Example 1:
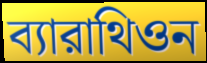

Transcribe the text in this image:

ব্যারাথিওন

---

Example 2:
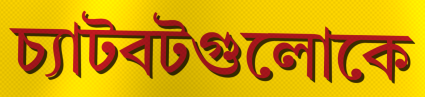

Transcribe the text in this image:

চ্যাটবটগুলোকে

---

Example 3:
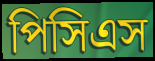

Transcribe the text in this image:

পিসিএস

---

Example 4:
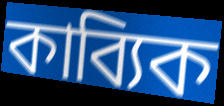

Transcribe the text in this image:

কাব্যিক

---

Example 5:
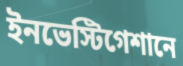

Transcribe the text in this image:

ইনভেস্টিগেশানে